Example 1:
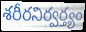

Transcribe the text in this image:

శరీరనిర్వర్త్యం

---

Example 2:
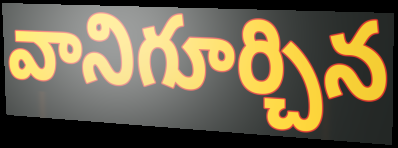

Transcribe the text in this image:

వానిగూర్చిన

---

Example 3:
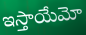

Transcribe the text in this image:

ఇస్తాయేమో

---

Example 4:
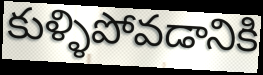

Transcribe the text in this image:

కుళ్ళిపోవడానికి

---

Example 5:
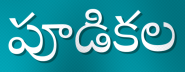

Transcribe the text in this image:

పూడికల